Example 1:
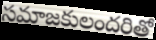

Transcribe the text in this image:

సమాజకులందరితో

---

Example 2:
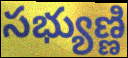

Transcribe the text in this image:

సభ్యుణ్ణి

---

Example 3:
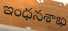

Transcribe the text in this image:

ఇంధనశాఖ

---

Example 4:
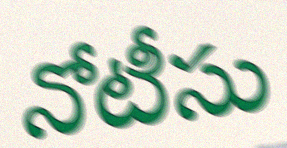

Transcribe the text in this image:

నోటీసు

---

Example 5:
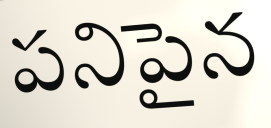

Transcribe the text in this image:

పనిపైన